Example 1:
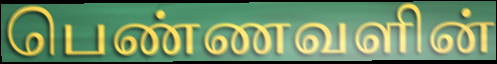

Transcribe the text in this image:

பெண்ணவளின்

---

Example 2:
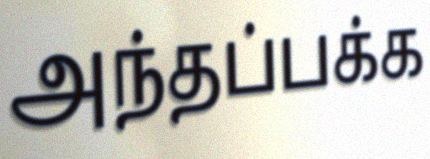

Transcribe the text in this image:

அந்தப்பக்க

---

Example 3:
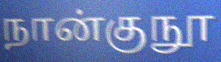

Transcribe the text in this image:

நான்குநூ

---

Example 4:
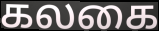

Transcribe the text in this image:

கலகை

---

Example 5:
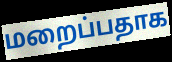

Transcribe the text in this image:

மறைப்பதாக